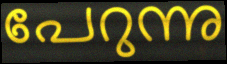
പേറുന്നു